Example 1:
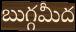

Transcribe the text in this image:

బుగ్గమీద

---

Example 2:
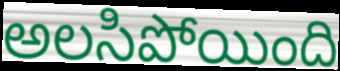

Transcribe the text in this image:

అలసిపోయింది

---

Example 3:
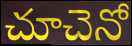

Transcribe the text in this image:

చూచెనో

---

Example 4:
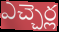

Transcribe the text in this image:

ఎచ్చెర్ల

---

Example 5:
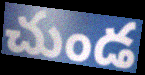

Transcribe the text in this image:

చుండ